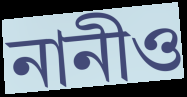
নানীও